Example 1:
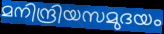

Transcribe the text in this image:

മനിന്ദ്രിയസമുദയം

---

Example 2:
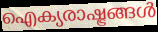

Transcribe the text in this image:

ഐക്യരാഷ്ട്രങ്ങൾ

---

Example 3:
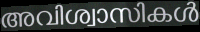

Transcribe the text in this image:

അവിശ്വാസികൾ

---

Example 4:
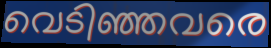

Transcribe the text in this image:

വെടിഞ്ഞവരെ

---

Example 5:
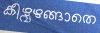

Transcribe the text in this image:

കീഴ്വഴങ്ങാതെ